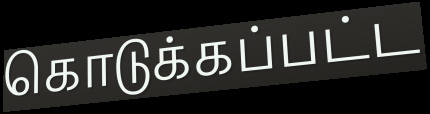
கொடுக்கப்பட்ட